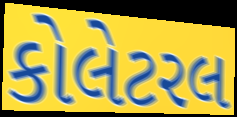
કોલેટરલ